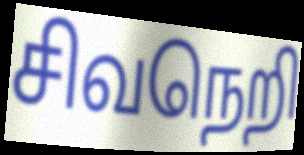
சிவநெறி